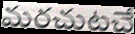
మరచుటచే